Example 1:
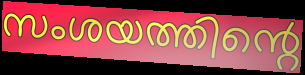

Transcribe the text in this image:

സംശയത്തിന്റെ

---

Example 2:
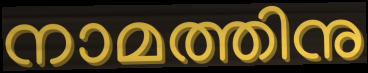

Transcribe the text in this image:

നാമത്തിനു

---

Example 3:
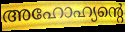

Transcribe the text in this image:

അഹോഹ്യന്റെ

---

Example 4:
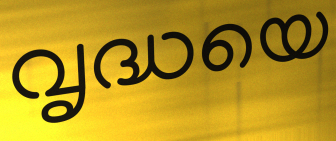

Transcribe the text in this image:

വൃദ്ധയെ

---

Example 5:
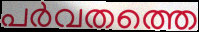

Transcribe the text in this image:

പർവതത്തെ